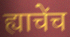
ह्याचेंच